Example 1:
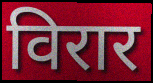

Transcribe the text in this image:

विरार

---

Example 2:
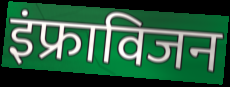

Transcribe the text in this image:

इंफ्राविजन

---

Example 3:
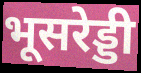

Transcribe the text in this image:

भूसरेड्डी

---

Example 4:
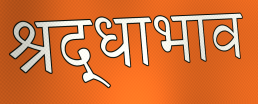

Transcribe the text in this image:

श्रद्धाभाव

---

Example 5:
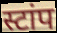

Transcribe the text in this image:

स्टांप